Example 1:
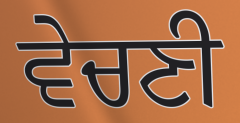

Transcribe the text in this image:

ਵੇਚਣੀ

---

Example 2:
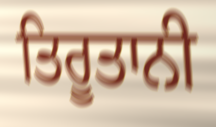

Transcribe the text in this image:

ਤਿਰੂਤਾਨੀ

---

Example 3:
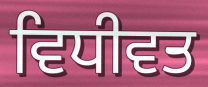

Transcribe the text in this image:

ਵਿਧੀਵਤ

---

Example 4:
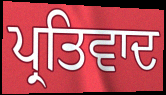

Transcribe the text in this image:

ਪ੍ਰਤਿਵਾਦ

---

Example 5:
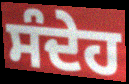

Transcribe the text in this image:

ਸੰਦੇਹ